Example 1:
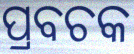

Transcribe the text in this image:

ପ୍ରବଚକ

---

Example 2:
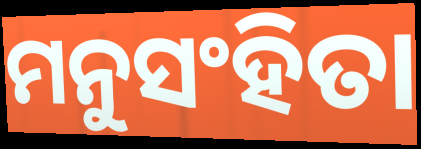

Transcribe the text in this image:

ମନୁସଂହିତା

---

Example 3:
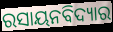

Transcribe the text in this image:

ରସାୟନବିଦ୍ୟାର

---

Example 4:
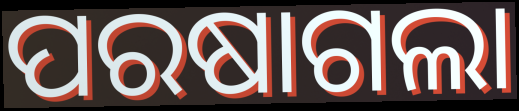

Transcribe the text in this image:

ପରଷାଗଲା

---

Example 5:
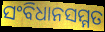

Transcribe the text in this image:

ସଂବିଧାନସମ୍ମତ